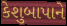
કેશુબાપાને